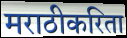
मराठीकरिता